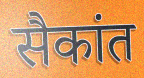
सैकांत